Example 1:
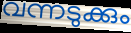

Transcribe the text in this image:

വന്നടുക്കും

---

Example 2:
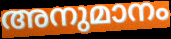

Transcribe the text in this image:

അനുമാനം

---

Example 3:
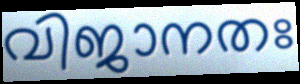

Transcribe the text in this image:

വിജാനതഃ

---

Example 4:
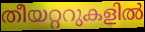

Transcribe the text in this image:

തീയറ്ററുകളിൽ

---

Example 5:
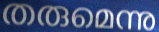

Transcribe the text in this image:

തരുമെന്നു